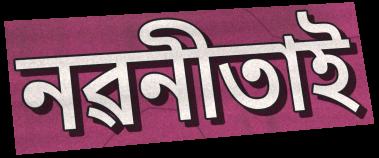
নৱনীতাই